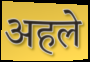
अहले